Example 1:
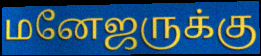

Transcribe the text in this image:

மனேஜருக்கு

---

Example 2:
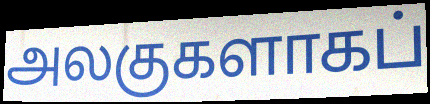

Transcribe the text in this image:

அலகுகளாகப்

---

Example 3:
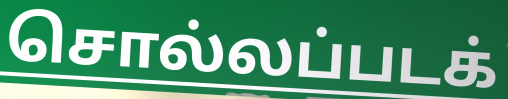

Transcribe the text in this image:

சொல்லப்படக்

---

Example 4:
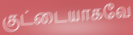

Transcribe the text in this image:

குட்டையாகவே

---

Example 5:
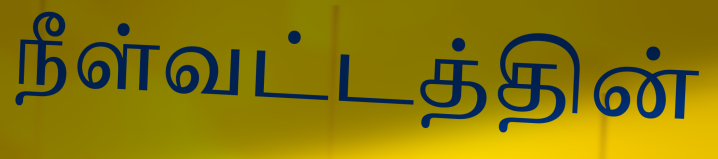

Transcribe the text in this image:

நீள்வட்டத்தின்